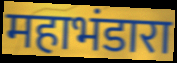
महाभंडारा